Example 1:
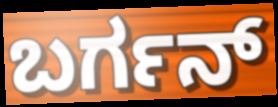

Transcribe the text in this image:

ಬರ್ಗನ್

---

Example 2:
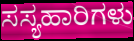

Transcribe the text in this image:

ಸಸ್ಯಹಾರಿಗಳು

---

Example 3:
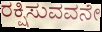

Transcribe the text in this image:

ರಕ್ಷಿಸುವವನೇ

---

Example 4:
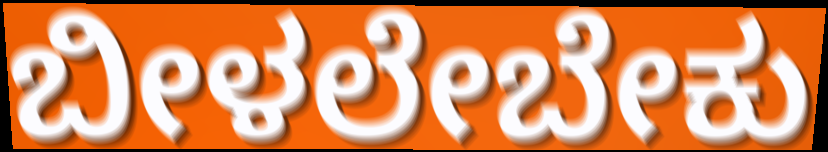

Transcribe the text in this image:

ಬೀಳಲೇಬೇಕು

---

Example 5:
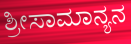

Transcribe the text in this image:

ಶ್ರೀಸಾಮಾನ್ಯನ